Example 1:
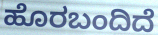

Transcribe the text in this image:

ಹೊರಬಂದಿದೆ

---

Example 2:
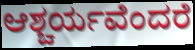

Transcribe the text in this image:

ಆಶ್ಚರ್ಯವೆಂದರೆ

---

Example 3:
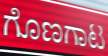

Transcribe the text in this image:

ಗೊಣಗಾಟ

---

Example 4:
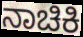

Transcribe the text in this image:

ನಾಚಿಕಿ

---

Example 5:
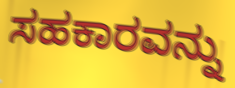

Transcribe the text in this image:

ಸಹಕಾರವನ್ನು